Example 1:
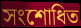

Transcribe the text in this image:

সংশোধিত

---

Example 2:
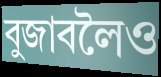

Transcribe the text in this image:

বুজাবলৈও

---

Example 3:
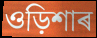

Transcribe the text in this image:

ওড়িশাৰ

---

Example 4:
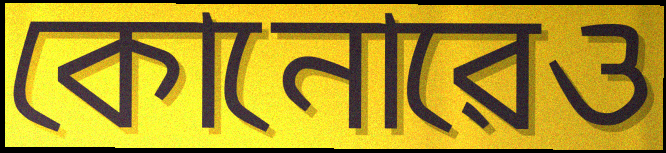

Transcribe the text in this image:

কোনোৱেও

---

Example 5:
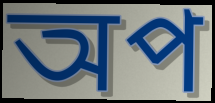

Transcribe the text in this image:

অপ